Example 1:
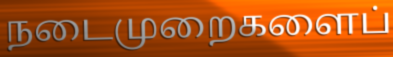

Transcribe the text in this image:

நடைமுறைகளைப்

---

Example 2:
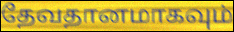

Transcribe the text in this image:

தேவதானமாகவும்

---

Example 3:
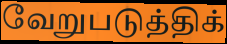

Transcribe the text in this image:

வேறுபடுத்திக்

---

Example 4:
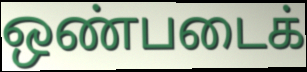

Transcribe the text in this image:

ஒண்படைக்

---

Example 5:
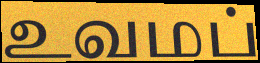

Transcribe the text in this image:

உவமப்